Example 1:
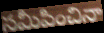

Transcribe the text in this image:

సమీపించినా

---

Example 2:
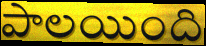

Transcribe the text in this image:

పాలయింది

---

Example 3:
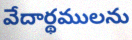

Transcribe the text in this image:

వేదార్థములను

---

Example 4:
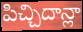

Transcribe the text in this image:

పిచ్చిదాన్లా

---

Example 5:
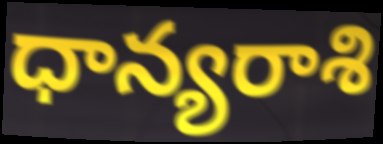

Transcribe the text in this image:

ధాన్యరాశి